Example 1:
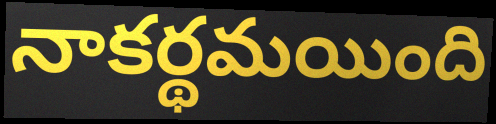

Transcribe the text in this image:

నాకర్థమయింది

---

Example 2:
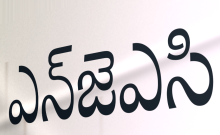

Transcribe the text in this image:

ఎన్‌జెఎసి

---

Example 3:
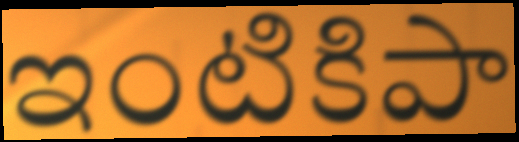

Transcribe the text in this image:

ఇంటికిపా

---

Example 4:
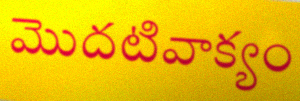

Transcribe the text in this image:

మొదటివాక్యం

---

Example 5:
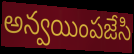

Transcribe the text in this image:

అన్వయింపజేసి